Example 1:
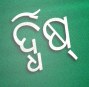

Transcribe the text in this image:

ର୍ଦ୍ଧିଷ୍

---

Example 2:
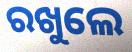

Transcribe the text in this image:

ରଖୁଲେ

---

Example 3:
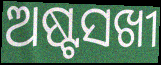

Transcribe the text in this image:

ଅଷ୍ଟସଖୀ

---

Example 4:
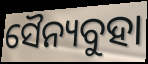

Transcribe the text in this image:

ସୈନ୍ୟବୁହା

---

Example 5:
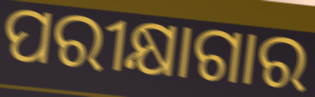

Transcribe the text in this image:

ପରୀକ୍ଷାଗାର